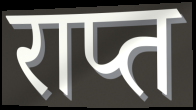
राप्त